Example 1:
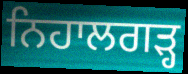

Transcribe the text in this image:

ਨਿਹਾਲਗੜ੍ਹ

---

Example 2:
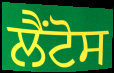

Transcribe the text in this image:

ਲੈਂਟੋਸ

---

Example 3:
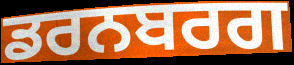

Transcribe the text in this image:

ਡਰਨਬਰਗ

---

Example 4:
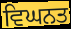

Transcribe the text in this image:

ਵਿਘਨਤ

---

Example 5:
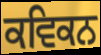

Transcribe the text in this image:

ਕਵਿਕਨ